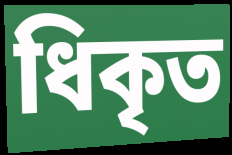
ধিকৃত